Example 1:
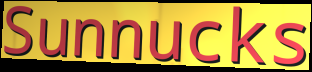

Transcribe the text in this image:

Sunnucks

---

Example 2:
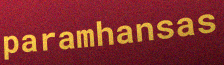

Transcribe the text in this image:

paramhansas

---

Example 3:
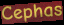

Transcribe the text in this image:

Cephas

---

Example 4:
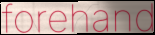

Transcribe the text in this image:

forehand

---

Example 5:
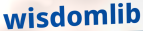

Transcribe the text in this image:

wisdomlib